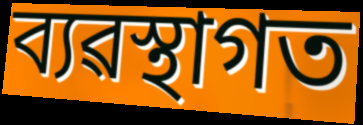
ব্যৱস্থাগত